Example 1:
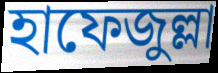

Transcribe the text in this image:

হাফেজুল্লা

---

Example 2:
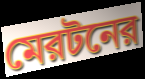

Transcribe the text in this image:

মেরটনের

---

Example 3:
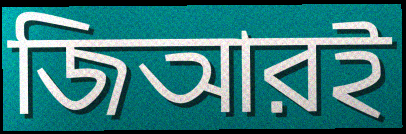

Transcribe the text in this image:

জিআরই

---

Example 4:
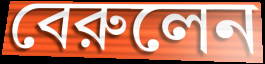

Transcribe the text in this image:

বেরুলেন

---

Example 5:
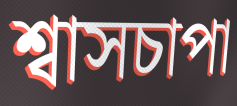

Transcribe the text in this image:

শ্বাসচাপা